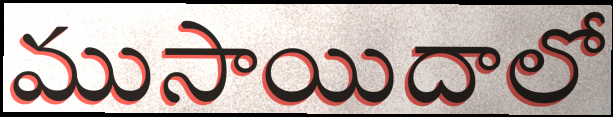
ముసాయిదాలో